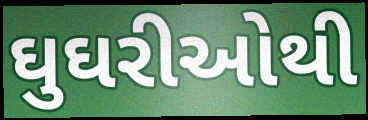
ઘુઘરીઓથી